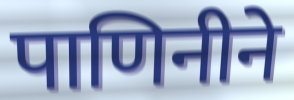
पाणिनीने